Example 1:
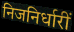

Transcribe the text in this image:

निजनिर्धारीं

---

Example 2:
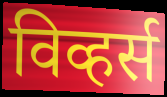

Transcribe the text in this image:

विव्हर्स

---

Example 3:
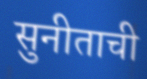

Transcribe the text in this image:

सुनीताची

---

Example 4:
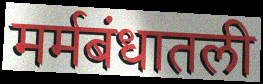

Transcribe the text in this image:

मर्मबंधातली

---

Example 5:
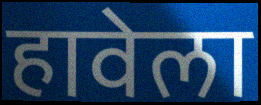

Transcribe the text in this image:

हावेला